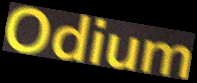
Odium